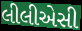
લીલીએસી